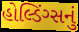
હોલ્ડિંગ્સનું